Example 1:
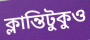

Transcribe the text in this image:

ক্লান্তিটুকুও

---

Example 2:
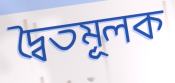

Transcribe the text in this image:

দ্বৈতমূলক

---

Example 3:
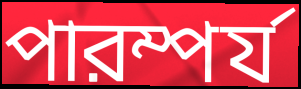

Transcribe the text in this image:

পারম্পর্য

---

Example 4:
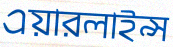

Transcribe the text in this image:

এয়ারলাইন্স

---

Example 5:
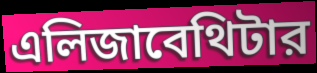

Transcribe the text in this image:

এলিজাবেথিটার